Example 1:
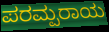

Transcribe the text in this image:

ಪರಮ್ಪರಾಯ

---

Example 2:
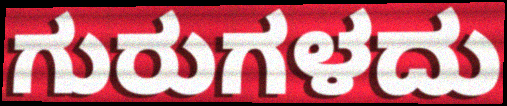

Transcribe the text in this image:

ಗುರುಗಳದು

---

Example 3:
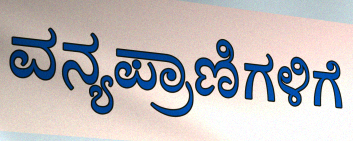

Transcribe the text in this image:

ವನ್ಯಪ್ರಾಣಿಗಳಿಗೆ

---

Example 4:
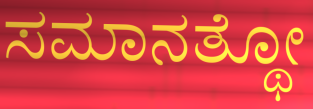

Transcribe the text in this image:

ಸಮಾನತ್ಥೋ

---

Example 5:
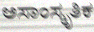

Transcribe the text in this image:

ಅಸಾಂಸ್ಕೃತಿಕ